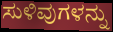
ಸುಳಿವುಗಳನ್ನು